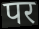
पर